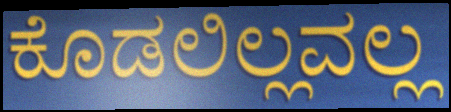
ಕೊಡಲಿಲ್ಲವಲ್ಲ